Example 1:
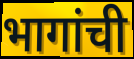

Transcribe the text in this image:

भागांची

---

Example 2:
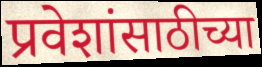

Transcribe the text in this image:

प्रवेशांसाठीच्या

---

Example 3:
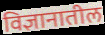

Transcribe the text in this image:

विज्ञानातील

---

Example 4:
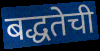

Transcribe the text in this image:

बद्धतेची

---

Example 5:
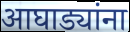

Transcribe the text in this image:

आघाड्यांना